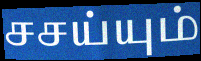
சசய்யும்